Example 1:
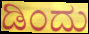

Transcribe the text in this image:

ಡಿಂದು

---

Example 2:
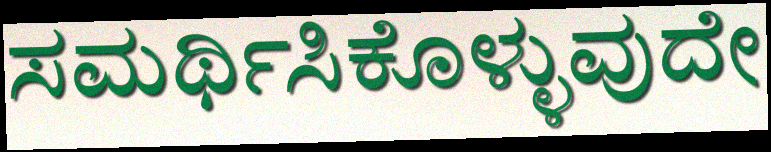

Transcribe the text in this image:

ಸಮರ್ಥಿಸಿಕೊಳ್ಳುವುದೇ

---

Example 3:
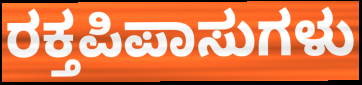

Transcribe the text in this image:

ರಕ್ತಪಿಪಾಸುಗಳು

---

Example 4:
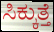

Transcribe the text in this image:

ಸಿಕ್ಕುತ್ತೆ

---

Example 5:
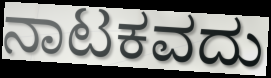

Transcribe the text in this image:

ನಾಟಕವದು